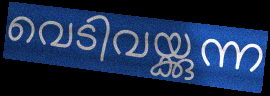
വെടിവയ്ക്കുന്ന